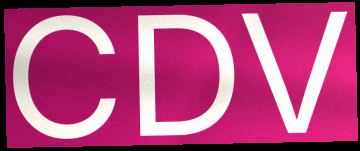
CDV